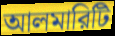
আলমারিটি